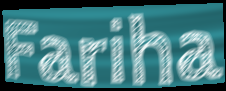
Fariha